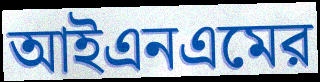
আইএনএমের